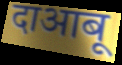
दाआबू